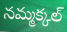
నమ్మక్కల్